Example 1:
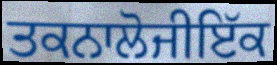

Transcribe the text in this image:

ਤਕਨਾਲੋਜੀਇੱਕ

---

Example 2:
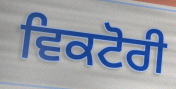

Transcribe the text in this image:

ਵਿਕਟੋਰੀ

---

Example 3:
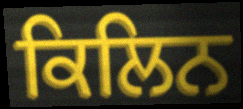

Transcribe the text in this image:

ਕਿਲਿਨ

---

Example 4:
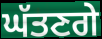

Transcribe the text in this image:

ਘੱਤਣਗੇ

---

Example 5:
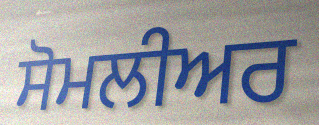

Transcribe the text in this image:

ਸੋਮਲੀਅਰ